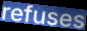
refuses